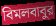
বিমলবাবুর